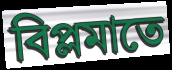
বিপ্লমাতে